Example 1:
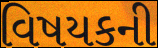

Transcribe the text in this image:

વિષયકની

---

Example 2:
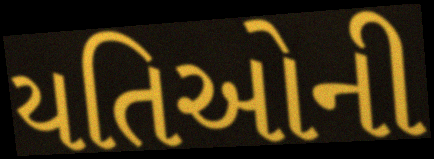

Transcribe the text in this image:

યતિઓની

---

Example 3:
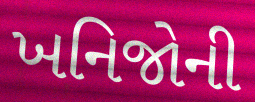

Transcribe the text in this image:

ખનિજોની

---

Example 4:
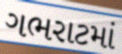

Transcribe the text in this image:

ગભરાટમાં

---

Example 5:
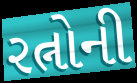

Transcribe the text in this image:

રત્નોની